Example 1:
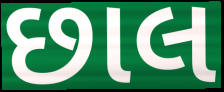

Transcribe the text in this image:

છાલ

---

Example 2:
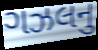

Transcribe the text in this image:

ગઝલનુ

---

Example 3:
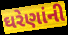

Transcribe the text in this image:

ઘરેણાંની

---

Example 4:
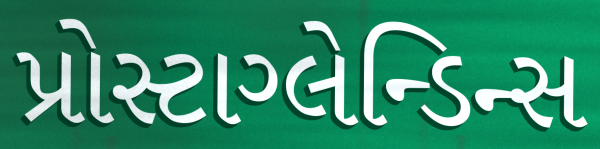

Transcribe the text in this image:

પ્રોસ્ટાગ્લેન્ડિન્સ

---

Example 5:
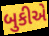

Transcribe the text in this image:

બુકીએ